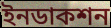
ইনডাকশন